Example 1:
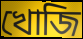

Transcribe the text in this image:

খোজি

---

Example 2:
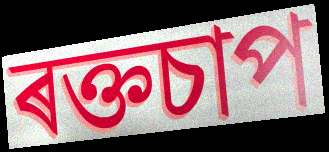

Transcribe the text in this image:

ৰক্তচাপ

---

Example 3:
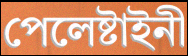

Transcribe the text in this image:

পেলেষ্টাইনী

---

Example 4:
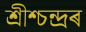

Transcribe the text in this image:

শ্ৰীশ্চন্দ্ৰৰ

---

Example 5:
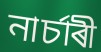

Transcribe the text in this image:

নাৰ্চাৰী